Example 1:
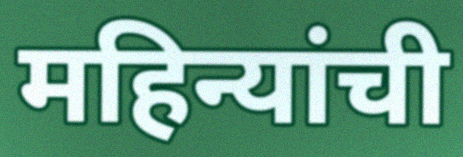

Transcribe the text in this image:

महिन्यांची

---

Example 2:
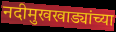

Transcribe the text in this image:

नदीमुखखाड्यांच्या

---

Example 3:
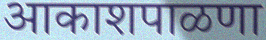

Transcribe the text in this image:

आकाशपाळणा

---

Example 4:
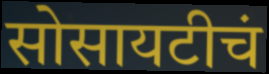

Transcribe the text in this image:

सोसायटीचं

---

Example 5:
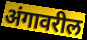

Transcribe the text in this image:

अंगावरील